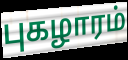
புகழாரம்